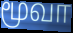
மூவா